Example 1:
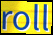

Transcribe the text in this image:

roll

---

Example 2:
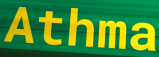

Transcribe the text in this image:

Athma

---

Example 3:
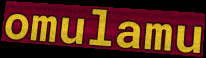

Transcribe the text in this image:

omulamu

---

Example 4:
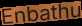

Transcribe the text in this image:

Enbathu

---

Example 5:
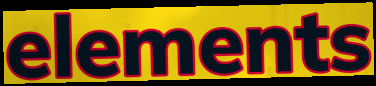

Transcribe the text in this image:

elements